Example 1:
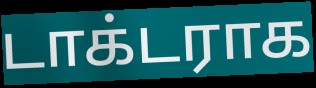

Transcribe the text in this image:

டாக்டராக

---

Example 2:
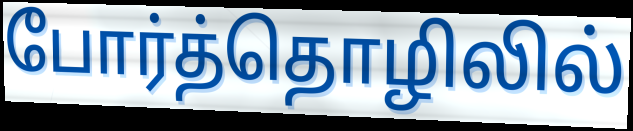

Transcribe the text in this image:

போர்த்தொழிலில்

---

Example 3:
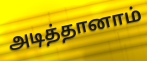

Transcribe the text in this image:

அடித்தானாம்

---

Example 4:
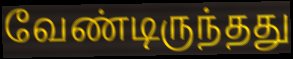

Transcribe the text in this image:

வேண்டிருந்தது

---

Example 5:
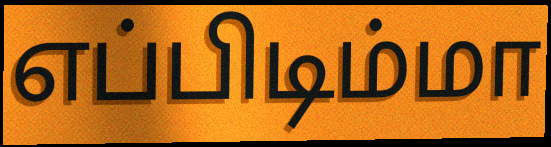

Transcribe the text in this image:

எப்பிடிம்மா